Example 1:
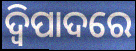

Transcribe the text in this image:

ଦ୍ୱିପାଦରେ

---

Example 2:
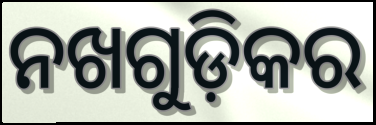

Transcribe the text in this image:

ନଖଗୁଡ଼ିକର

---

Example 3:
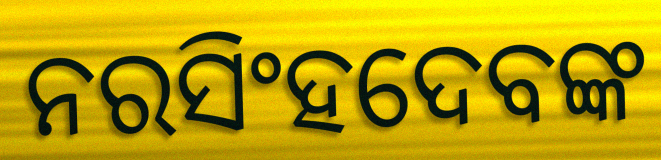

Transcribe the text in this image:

ନରସିଂହଦେବଙ୍କ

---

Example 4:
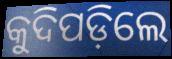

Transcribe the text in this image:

କୁଦିପଡ଼ିଲେ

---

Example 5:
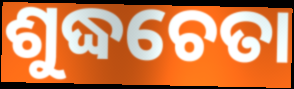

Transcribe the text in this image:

ଶୁଦ୍ଧଚେତା